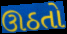
ઊઠતો